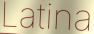
Latina